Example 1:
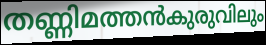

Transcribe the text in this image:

തണ്ണിമത്തൻകുരുവിലും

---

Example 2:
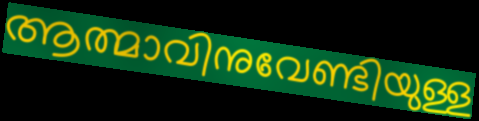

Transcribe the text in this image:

ആത്മാവിനുവേണ്ടിയുള്ള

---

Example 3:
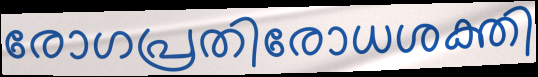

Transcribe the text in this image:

രോഗപ്രതിരോധശക്തി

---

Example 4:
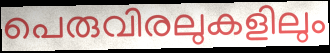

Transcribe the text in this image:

പെരുവിരലുകളിലും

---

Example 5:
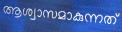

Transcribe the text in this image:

ആശ്വാസമാകുന്നത്